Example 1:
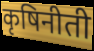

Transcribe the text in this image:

कृषिनीती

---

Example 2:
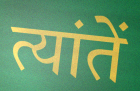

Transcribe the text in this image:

त्यांतें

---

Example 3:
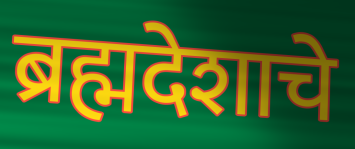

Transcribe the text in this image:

ब्रह्मदेशाचे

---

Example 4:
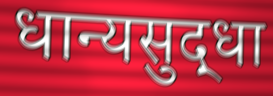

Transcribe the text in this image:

धान्यसुद्धा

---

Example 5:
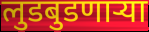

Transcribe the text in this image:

लुडबुडणाऱ्या